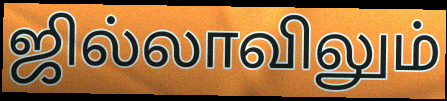
ஜில்லாவிலும்